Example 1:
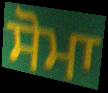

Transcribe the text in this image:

ਸੋਮਾ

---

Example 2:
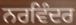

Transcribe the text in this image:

ਨਰਵਿੰਦਰ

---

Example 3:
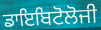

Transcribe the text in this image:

ਡਾਇਬਿਟੋਲੋਜੀ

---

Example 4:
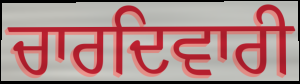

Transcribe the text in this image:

ਚਾਰਦਿਵਾਰੀ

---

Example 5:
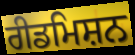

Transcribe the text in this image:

ਰੀਡਮਿਸ਼ਨ